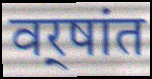
वर्षांत